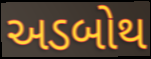
અડબોથ